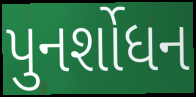
પુનર્શોધન